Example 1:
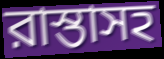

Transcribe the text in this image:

রাস্তাসহ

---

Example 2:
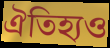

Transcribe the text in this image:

ঐতিহ্যও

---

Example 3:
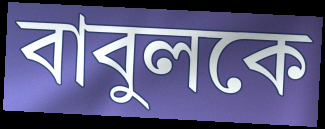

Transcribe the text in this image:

বাবুলকে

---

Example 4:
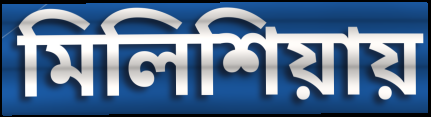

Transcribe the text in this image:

মিলিশিয়ায়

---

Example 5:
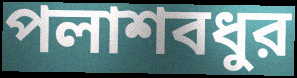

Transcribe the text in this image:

পলাশবধুর